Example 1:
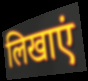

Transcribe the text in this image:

लिखाएं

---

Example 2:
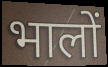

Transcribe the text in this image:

भालों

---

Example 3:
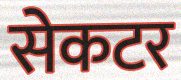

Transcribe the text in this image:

सेकटर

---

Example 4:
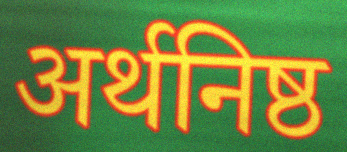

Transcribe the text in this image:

अर्थनिष्ठ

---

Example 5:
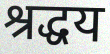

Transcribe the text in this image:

श्रद्धय